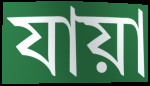
যায়া